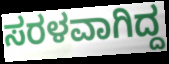
ಸರಳವಾಗಿದ್ದ